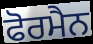
ਫੋਰਮੈਨ